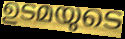
ഉടമയുടെ